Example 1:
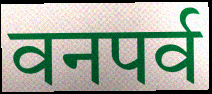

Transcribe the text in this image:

वनपर्व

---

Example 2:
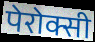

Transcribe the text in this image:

पेरोक्सी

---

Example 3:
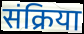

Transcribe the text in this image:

संक्रिया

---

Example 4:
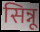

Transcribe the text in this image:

सिन्नू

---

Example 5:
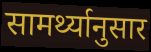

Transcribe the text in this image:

सामर्थ्यानुसार